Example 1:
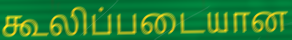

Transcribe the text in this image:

கூலிப்படையான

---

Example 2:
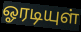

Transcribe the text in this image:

ஓரடியுள்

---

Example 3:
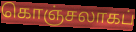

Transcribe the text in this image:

கொஞ்சலாகப்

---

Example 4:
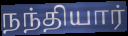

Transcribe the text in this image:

நந்தியார்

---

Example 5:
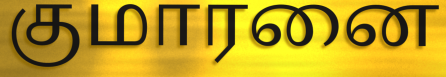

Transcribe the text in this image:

குமாரனை